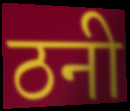
ठनी